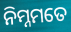
ନିମ୍ନମତେ